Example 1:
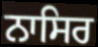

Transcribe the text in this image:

ਨਾਸਿਰ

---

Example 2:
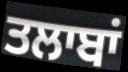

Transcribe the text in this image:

ਤਲਾਬਾਂ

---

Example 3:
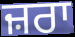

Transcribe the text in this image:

ਜ਼ਰਾ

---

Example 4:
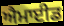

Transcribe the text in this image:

ਐਮਾਈਡ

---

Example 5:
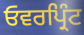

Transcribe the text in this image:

ਓਵਰਪ੍ਰਿੰਟ